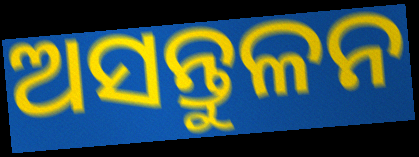
ଅସନ୍ତୁଳନ